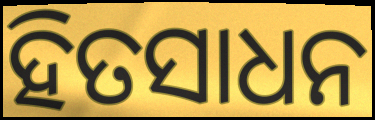
ହିତସାଧନ